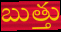
బుత్తు